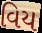
વિય